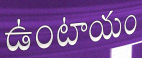
ఉంటాయం